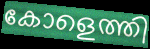
കോളെത്തി